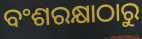
ବଂଶରକ୍ଷାଠାରୁ